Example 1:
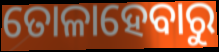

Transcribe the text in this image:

ତୋଳାହେବାରୁ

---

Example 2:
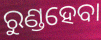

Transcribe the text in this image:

ରୁଣ୍ଡହେବା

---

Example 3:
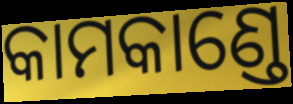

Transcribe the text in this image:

କାମକାଣ୍ଡେ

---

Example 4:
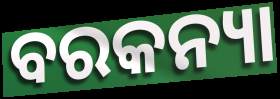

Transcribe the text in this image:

ବରକନ୍ୟା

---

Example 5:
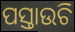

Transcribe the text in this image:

ପସ୍ତାଉଚି